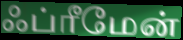
ஃப்ரீமேன்